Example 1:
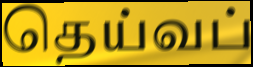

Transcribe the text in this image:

தெய்வப்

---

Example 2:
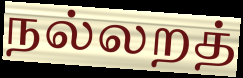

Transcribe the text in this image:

நல்லறத்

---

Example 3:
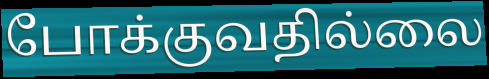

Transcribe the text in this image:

போக்குவதில்லை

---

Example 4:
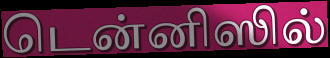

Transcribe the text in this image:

டென்னிஸில்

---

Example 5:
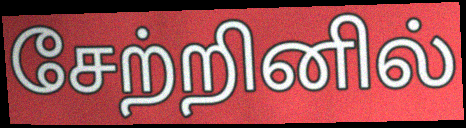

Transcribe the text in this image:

சேற்றினில்